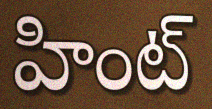
హింట్